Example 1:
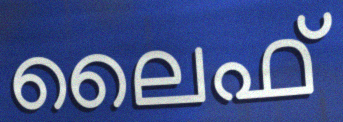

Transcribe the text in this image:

ലൈഫ്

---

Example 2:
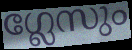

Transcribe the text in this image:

ഗ്ലേസും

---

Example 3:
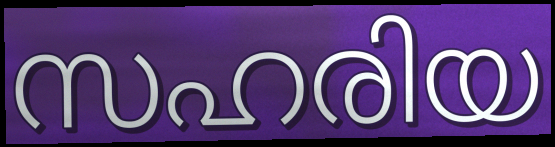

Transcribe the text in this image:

സഹരിയ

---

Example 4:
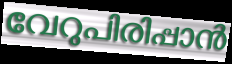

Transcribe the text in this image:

വേറുപിരിപ്പാൻ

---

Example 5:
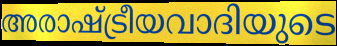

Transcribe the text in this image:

അരാഷ്ട്രീയവാദിയുടെ